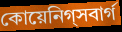
কোয়েনিগ্সবার্গ